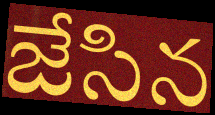
జేసిన